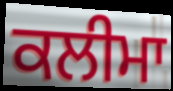
ਕਲੀਮਾ